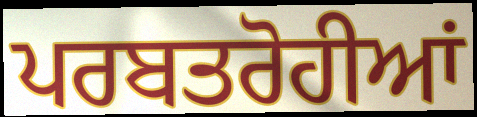
ਪਰਬਤਰੋਹੀਆਂ